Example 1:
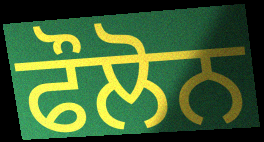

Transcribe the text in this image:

ਫੌਲੋਨ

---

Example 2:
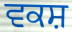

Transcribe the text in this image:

ਵਕਸ਼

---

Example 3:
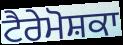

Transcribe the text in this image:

ਟੈਰੇਮੋਸ਼ਕਾ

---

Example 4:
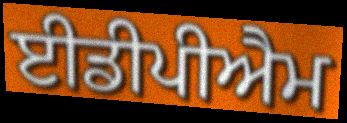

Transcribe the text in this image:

ਈਡੀਪੀਐਮ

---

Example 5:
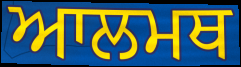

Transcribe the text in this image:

ਆਲਮਥ